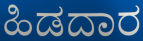
ಹಿಡದಾರ